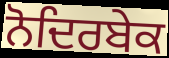
ਨੋਦਿਰਬੇਕ